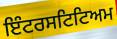
ਇੰਟਰਸਟਿਟਿਅਮ